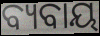
ବ୍ୟବାୟ